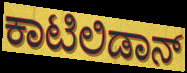
ಕಾಟಿಲಿಡಾನ್